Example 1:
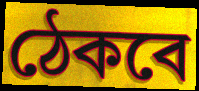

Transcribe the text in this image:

ঠেকবে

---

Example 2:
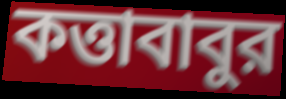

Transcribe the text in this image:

কত্তাবাবুর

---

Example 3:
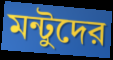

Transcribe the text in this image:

মন্টুদের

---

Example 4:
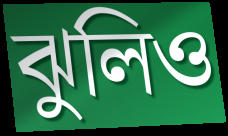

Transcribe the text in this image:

ঝুলিও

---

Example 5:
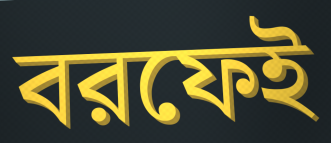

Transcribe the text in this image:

বরফেই